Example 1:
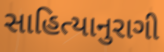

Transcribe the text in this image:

સાહિત્યાનુરાગી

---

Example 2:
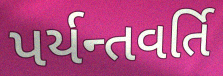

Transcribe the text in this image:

પર્યન્તવર્તિ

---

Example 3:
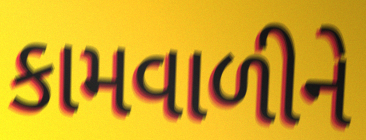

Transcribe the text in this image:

કામવાળીને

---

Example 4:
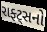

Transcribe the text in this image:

રાફ્ટ્સનો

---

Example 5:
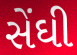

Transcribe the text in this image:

સેંઘી